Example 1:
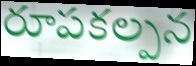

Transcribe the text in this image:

రూపకల్పన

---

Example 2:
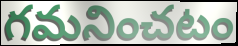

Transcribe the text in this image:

గమనించటం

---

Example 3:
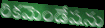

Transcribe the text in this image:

రికమెండేషను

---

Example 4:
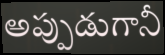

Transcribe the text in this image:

అప్పుడుగానీ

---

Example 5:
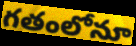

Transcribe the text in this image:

గతంలోనూ